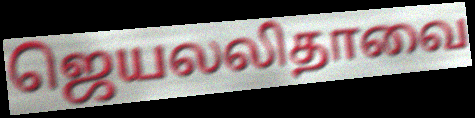
ஜெயலலிதாவை